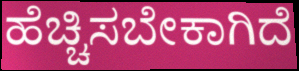
ಹೆಚ್ಚಿಸಬೇಕಾಗಿದೆ